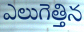
ఎలుగెత్తిన